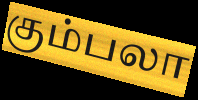
கும்பலா